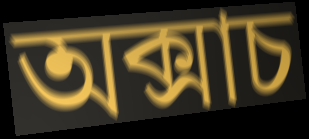
অক্সাচ